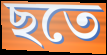
ছতে